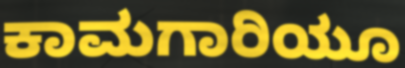
ಕಾಮಗಾರಿಯೂ